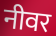
नीवर